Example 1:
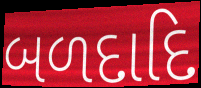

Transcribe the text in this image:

બળદાદિ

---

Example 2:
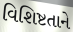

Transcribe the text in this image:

વિશિષ્ટતાને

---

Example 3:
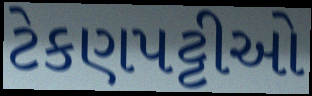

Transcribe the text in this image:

ટેકણપટ્ટીઓ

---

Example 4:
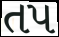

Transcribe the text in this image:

તપ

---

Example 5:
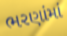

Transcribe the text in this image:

ભરણાંમાં